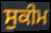
ਸੁਕੀਮ